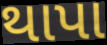
થાપા